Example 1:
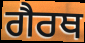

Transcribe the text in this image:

ਗੈਰਥ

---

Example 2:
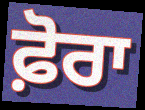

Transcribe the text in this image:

ਫ਼ੋਰਾ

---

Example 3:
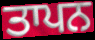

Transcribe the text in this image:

ਤਾਪਨ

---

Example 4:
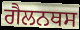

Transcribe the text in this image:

ਗੈਲਨਥਸ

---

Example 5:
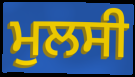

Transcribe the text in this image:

ਮੁਲਸੀ